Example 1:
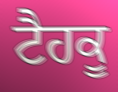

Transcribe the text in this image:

ਟੈਹਕੂ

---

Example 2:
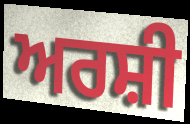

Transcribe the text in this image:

ਅਰਸ਼ੀ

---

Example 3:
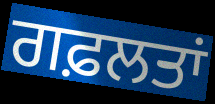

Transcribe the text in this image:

ਗਫ਼ਲਤਾਂ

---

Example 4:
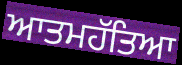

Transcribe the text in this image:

ਆਤਮਹੱਤਿਆ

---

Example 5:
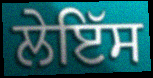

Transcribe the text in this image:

ਲੇਇੱਸ